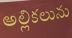
అల్లికలును